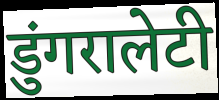
डुंगरालेटी